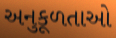
અનુકૂળતાઓ